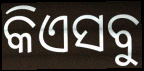
କିଏସବୁ